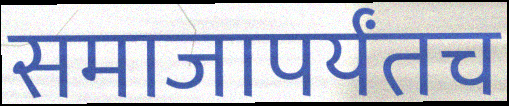
समाजापर्यंतच